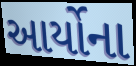
આર્યોના